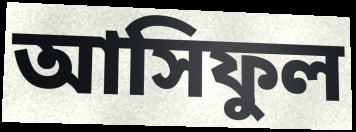
আসিফুল